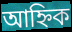
আহ্নিক